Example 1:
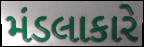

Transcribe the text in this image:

મંડલાકારે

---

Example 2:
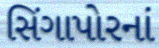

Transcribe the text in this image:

સિંગાપોરનાં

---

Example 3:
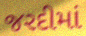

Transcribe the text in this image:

જરદીમાં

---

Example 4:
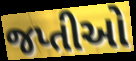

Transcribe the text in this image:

જપ્તીઓ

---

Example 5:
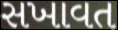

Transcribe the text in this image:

સખાવત